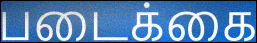
படைக்கை